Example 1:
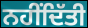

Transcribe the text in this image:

ਨਹੀਂਦਿੱਤੀ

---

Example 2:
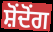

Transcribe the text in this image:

ਸ਼ੋਂਦੋਂਗ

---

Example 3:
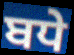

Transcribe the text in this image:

ਬਧੇ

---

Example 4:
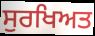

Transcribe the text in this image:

ਸੁਰਖਿਅਤ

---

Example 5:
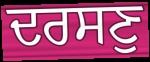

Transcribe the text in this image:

ਦਰਸਣੁ